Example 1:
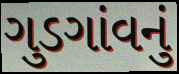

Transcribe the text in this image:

ગુડગાંવનું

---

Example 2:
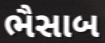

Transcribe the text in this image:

ભૈસાબ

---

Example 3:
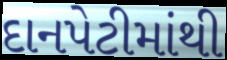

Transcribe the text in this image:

દાનપેટીમાંથી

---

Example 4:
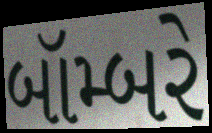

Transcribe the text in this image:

બૉમ્બરે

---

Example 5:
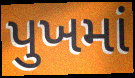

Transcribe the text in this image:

પુખમાં